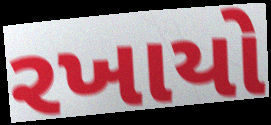
રખાયો